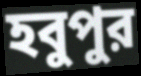
হবুপুর